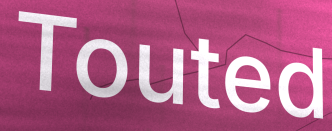
Touted